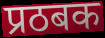
प्रठबक